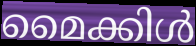
മൈക്കിൾ